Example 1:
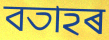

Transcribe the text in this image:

বতাহৰ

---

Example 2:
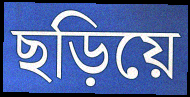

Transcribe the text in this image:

ছড়িয়ে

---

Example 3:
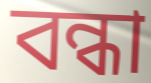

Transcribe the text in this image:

বন্ধা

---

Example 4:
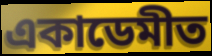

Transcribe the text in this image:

একাডেমীত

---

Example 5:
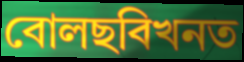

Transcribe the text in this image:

বোলছবিখনত